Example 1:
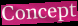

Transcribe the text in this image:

Concept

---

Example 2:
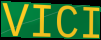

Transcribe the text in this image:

VICI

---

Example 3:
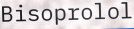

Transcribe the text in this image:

Bisoprolol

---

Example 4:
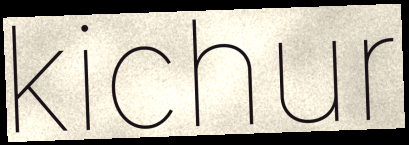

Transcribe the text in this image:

kichur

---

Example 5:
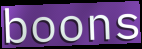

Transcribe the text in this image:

boons